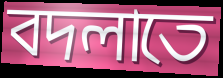
বদলাতে